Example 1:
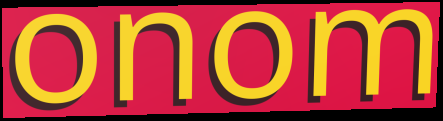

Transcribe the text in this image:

onom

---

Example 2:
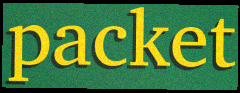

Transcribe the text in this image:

packet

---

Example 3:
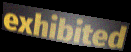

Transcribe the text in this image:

exhibited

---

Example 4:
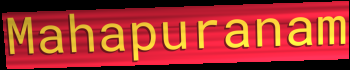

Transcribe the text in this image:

Mahapuranam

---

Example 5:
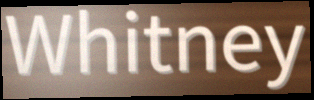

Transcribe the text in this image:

Whitney